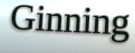
Ginning